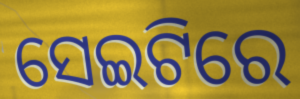
ସେଇଟିରେ